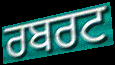
ਰਬਰਟ